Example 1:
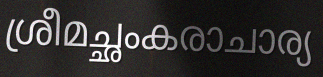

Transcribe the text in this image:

ശ്രീമച്ഛംകരാചാര്യ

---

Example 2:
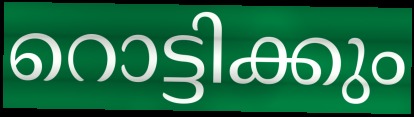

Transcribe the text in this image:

റൊട്ടിക്കും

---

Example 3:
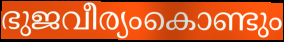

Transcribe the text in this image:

ഭുജവീര്യംകൊണ്ടും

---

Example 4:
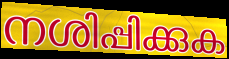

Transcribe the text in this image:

നശിപ്പിക്കുക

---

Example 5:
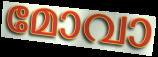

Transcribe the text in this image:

മോവാ